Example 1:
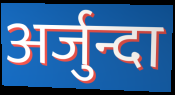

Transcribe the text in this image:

अर्जुन्दा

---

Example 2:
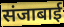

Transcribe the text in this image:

संजाबाई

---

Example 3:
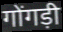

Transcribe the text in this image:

गोंगड़ी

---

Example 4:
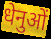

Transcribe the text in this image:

धेनुओं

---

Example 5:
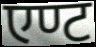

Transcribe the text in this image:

एण्ट